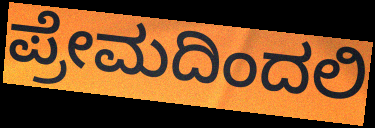
ಪ್ರೇಮದಿಂದಲಿ